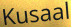
Kusaal